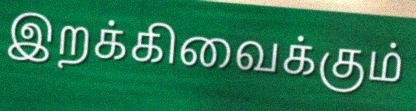
இறக்கிவைக்கும்